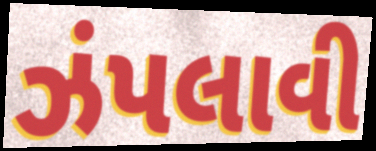
ઝંપલાવી